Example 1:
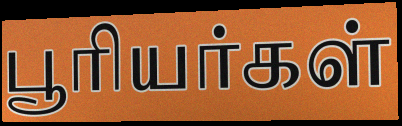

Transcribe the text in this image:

பூரியர்கள்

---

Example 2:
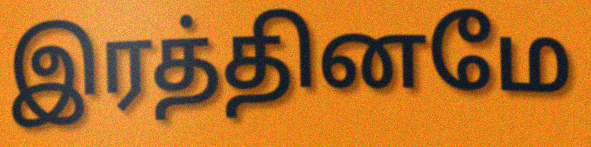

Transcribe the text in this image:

இரத்தினமே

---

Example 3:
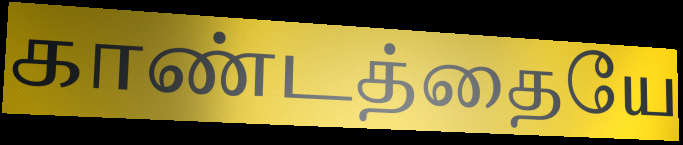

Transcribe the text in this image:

காண்டத்தையே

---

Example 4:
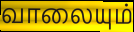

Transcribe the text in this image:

வாலையும்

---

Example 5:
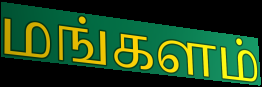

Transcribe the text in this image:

மங்களம்